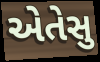
એતેસુ